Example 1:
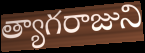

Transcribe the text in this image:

త్యాగరాజుని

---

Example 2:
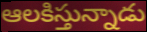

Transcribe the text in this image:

ఆలకిస్తున్నాడు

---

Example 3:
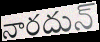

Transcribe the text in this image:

నారదున్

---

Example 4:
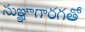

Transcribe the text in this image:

సుఞ్ఞాగారగతో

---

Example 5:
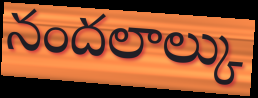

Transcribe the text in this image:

నందలాల్కు